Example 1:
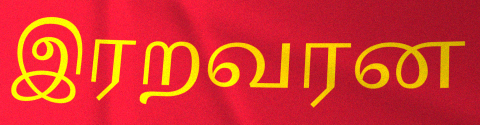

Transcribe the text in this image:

இரறவரன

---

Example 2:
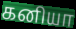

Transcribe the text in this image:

கனியா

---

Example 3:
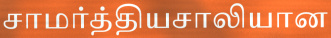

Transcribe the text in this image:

சாமர்த்தியசாலியான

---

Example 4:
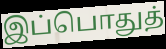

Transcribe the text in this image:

இப்பொதுத்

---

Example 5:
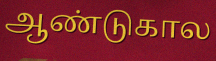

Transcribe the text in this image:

ஆண்டுகால